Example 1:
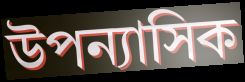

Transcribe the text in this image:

উপন্যাসিক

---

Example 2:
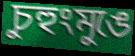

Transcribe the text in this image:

চুহুংমুঙে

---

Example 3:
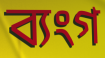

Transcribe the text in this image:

ব্যংগ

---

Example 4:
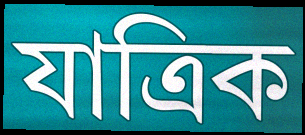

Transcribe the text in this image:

যাত্ৰিক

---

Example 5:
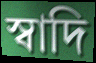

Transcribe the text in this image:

স্বাদি